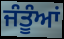
ਜੰਤੂੰਆਂ